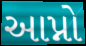
આપ્નો